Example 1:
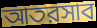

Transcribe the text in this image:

আতরসাব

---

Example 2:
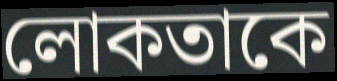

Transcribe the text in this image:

লোকতাকে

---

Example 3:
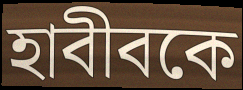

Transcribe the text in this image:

হাবীবকে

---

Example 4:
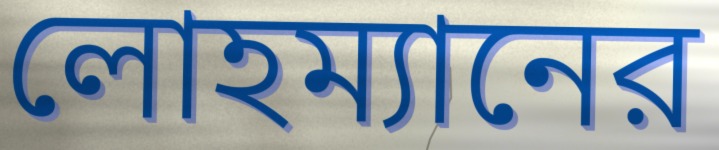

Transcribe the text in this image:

লোহম্যানের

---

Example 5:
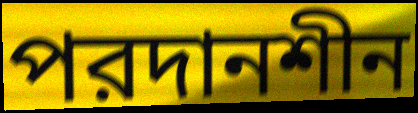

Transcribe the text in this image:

পরদানশীন